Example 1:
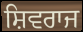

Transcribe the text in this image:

ਸ਼ਿਵਰਾਜ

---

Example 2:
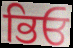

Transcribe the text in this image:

ਭਿਓ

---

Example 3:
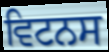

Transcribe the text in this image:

ਵਿਟਨਸ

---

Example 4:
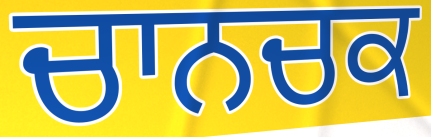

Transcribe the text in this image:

ਚਾਨਚਕ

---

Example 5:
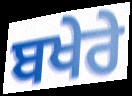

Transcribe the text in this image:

ਬਖੇਰੇ